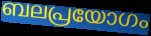
ബലപ്രയോഗം